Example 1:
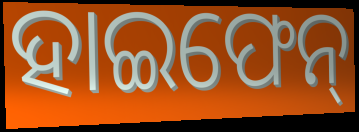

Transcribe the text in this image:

ହାଇଫେନ୍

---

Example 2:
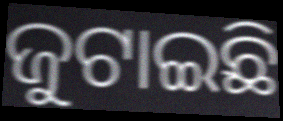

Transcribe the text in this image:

ଜୁଟାଇଛି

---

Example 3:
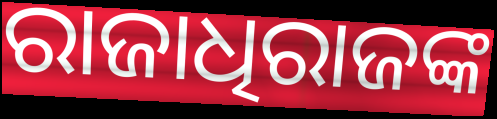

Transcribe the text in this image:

ରାଜାଧିରାଜଙ୍କ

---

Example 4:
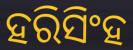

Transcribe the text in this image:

ହରିସିଂହ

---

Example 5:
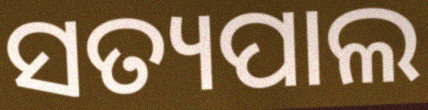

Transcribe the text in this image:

ସତ୍ୟପାଲ